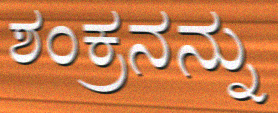
ಶಂಕ್ರನನ್ನು